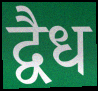
द्वैध